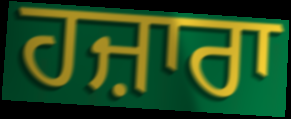
ਹਜ਼ਾਰਾ